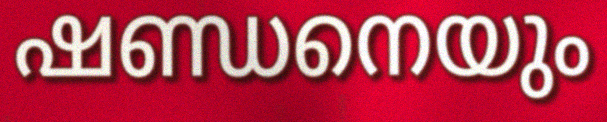
ഷണ്ഡനെയും